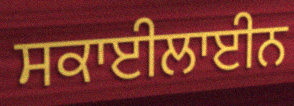
ਸਕਾਈਲਾਈਨ